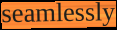
seamlessly